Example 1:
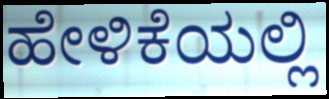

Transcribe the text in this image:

ಹೇಳಿಕೆಯಲ್ಲಿ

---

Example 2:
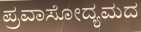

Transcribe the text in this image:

ಪ್ರವಾಸೋದ್ಯಮದ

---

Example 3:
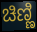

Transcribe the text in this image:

ಚಿಣ್ಣಿ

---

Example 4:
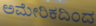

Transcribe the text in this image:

ಅಮೇರಿಕದಿಂದ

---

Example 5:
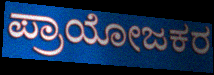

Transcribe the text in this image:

ಪ್ರಾಯೋಜಕರ